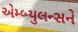
એમ્બ્યુલન્સને